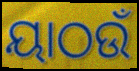
ୟାଠଉଁ